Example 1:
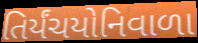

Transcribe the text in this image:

તિર્યંચયોનિવાળા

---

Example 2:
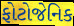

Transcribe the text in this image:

ફોટોજેનિક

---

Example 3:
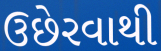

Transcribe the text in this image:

ઉછેરવાથી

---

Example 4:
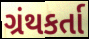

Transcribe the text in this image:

ગ્રંથકર્તા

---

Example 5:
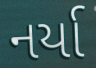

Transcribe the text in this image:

નર્યા